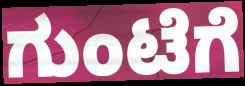
ಗುಂಟೆಗೆ